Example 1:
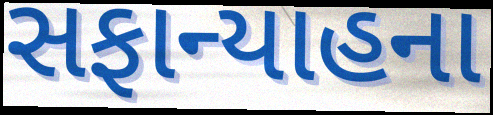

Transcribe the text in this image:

સફાન્યાહના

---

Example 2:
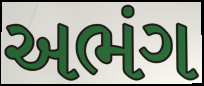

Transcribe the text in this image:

અભંગ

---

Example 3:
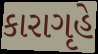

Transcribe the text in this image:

કારાગૃહે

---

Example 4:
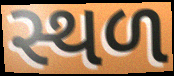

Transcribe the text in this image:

સ્થળ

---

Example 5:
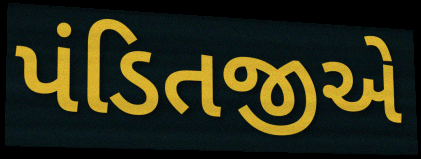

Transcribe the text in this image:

પંડિતજીએ